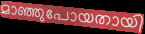
മാഞ്ഞുപോയതായി